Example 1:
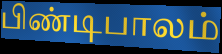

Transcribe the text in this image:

பிண்டிபாலம்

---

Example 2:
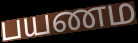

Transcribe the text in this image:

பயணம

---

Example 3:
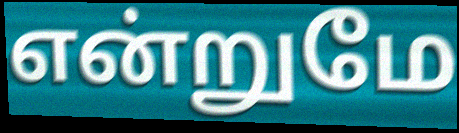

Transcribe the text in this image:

என்றுமே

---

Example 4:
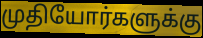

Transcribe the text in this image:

முதியோர்களுக்கு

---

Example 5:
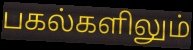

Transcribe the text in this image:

பகல்களிலும்